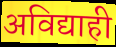
अविद्याही